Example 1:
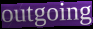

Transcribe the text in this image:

outgoing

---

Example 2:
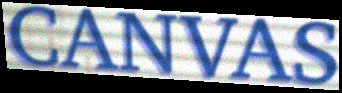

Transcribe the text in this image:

CANVAS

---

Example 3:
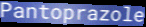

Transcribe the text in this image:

Pantoprazole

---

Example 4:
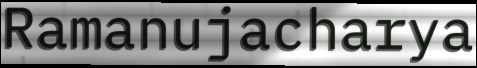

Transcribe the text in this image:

Ramanujacharya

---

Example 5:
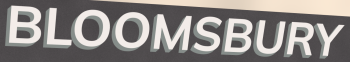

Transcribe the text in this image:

BLOOMSBURY